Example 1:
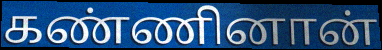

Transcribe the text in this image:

கண்ணினான்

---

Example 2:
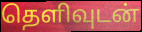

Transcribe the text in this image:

தெளிவுடன்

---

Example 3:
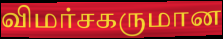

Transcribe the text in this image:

விமர்சகருமான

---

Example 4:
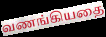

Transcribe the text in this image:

வணங்கியதை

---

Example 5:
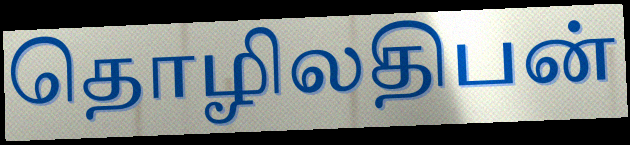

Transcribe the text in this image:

தொழிலதிபன்